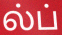
ல்ப்